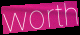
worth